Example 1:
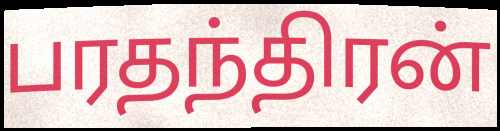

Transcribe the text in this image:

பரதந்திரன்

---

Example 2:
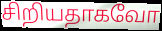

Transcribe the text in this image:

சிறியதாகவோ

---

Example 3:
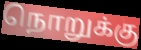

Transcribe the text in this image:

நொறுக்கு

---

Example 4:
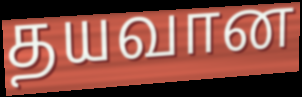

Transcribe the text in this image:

தயவான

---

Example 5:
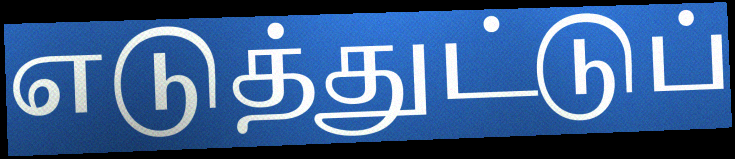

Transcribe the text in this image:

எடுத்துட்டுப்